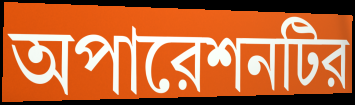
অপারেশনটির